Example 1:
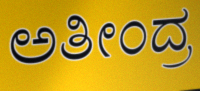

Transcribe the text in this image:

ಅತೀಂದ್ರ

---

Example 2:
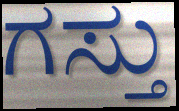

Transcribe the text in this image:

ಗಸ್ತು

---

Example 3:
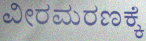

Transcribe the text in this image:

ವೀರಮರಣಕ್ಕೆ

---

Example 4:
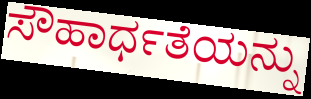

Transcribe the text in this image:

ಸೌಹಾರ್ಧತೆಯನ್ನು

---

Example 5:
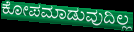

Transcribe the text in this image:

ಕೋಪಮಾಡುವುದಿಲ್ಲ